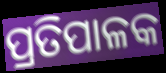
ପ୍ରତିପାଳକ